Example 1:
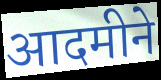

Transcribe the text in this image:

आदमीने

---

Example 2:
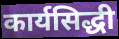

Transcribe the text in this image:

कार्यसिद्धी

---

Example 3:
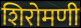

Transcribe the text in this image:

शिरोमणी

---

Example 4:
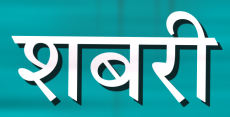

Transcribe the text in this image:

शबरी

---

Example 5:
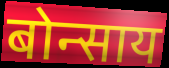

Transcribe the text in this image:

बोन्साय